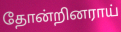
தோன்றினராய்